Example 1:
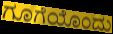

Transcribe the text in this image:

ಗೂಗೆಯೊಂದು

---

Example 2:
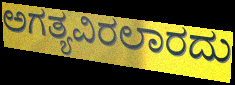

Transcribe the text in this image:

ಅಗತ್ಯವಿರಲಾರದು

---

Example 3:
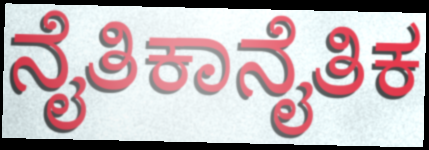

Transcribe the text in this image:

ನೈತಿಕಾನೈತಿಕ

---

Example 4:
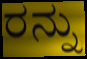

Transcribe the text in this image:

ರನ್ನು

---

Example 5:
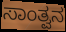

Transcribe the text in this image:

ಸಾಂತ್ವನ